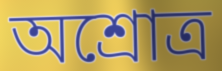
অশ্রোত্র